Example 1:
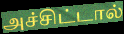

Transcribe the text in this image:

அச்சிட்டால்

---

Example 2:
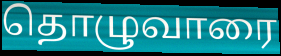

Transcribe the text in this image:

தொழுவாரை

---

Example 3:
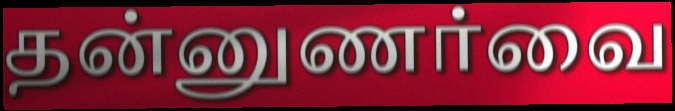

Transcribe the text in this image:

தன்னுணர்வை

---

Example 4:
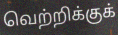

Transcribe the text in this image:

வெற்றிக்குக்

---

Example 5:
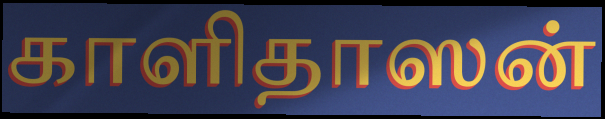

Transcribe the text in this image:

காளிதாஸன்